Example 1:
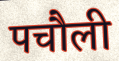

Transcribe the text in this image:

पचौली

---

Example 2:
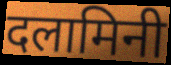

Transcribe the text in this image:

दलामिनी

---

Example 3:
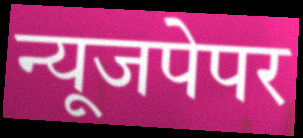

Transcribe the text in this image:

न्‍यूजपेपर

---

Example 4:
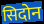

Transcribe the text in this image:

सिदोन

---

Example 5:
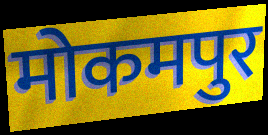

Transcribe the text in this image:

मोकमपुर